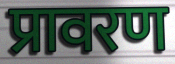
प्रावरण